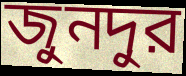
জুনদুর